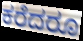
ಕರೆದರೂ